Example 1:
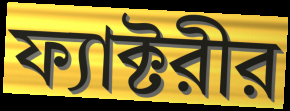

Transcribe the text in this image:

ফ্যাক্টরীর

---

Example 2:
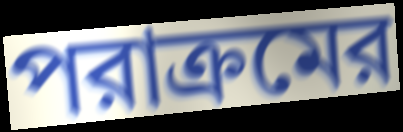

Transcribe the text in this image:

পরাক্রমের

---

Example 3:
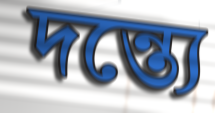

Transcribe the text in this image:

দন্ত্যে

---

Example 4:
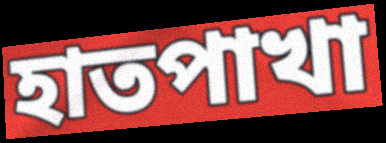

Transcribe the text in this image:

হাতপাখা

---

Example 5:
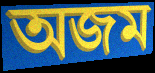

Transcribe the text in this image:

অজম